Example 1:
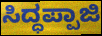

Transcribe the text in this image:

ಸಿದ್ಧಪ್ಪಾಜಿ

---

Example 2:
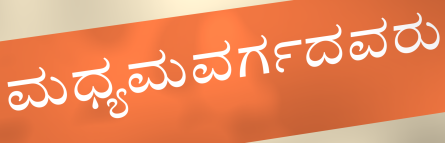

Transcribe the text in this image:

ಮಧ್ಯಮವರ್ಗದವರು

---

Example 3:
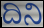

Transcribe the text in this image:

ದಿನಿ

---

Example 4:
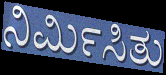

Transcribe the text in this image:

ನಿರ್ಮಿಸಿತು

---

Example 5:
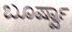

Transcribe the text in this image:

ಬೂರ್ಷ್ವಾ